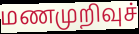
மணமுறிவுச்